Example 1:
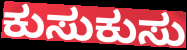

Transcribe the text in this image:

ಕುಸುಕುಸು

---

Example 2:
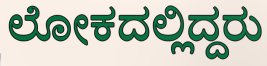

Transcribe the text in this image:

ಲೋಕದಲ್ಲಿದ್ದರು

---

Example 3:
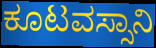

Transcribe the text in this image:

ಕೂಟವಸ್ಸಾನಿ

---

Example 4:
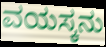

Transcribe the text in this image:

ವಯಸ್ಕನು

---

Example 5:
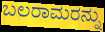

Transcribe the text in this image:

ಬಲರಾಮರನ್ನು